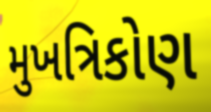
મુખત્રિકોણ